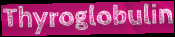
Thyroglobulin